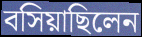
বসিয়াছিলেন